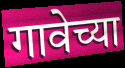
गावेच्या